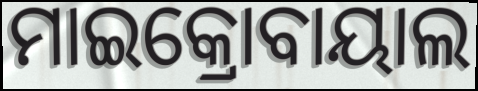
ମାଇକ୍ରୋବାୟାଲ